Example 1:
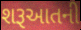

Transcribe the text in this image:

શરૂઆતની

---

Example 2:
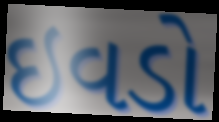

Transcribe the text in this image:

ઇવડો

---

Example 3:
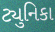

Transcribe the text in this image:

ટ્યુનિકા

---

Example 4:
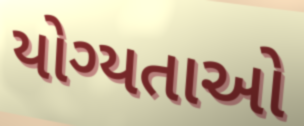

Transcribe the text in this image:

યોગ્યતાઓ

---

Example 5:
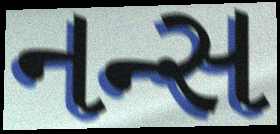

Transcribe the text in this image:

નન્સ